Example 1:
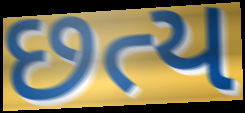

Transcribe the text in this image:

છત્ય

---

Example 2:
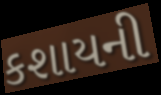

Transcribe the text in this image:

કશાયની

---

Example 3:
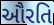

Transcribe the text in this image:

ઔરતિ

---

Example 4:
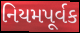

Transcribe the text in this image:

નિયમપૂર્વક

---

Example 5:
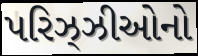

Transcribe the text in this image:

પરિઝ્ઝીઓનો